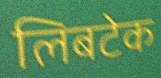
लिबटेक